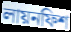
লায়নফিশ